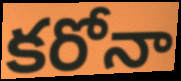
కరోనా